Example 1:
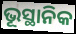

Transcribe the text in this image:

ଭୂସ୍ଥାନିକ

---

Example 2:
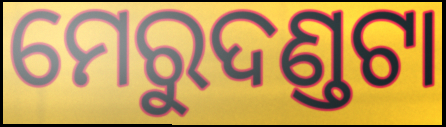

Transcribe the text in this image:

ମେରୁଦଣ୍ଡଟା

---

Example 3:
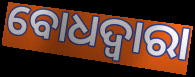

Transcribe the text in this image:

ବୋଧଦ୍ଵାରା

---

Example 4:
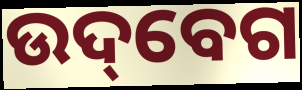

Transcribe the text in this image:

ଉଦ୍‌ବେଗ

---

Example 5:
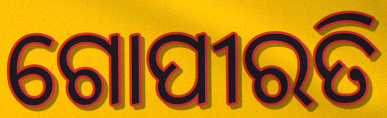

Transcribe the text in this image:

ଗୋପୀରତି